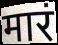
मारं